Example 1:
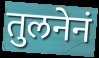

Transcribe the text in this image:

तुलनेनं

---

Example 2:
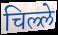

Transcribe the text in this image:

चिल्ले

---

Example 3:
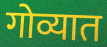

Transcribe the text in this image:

गोव्यात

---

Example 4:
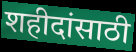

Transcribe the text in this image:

शहीदांसाठी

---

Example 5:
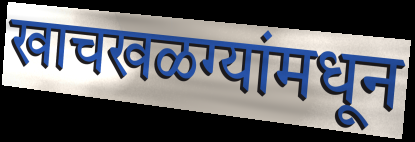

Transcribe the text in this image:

खाचखळग्यांमधून